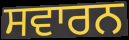
ਸਵਾਰਨ